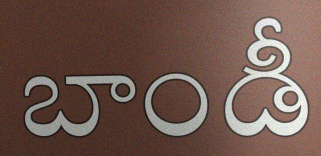
బాండీ